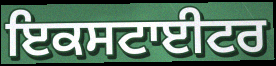
ਇਕਸਟਾਈਟਰ